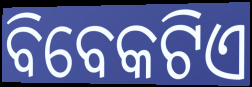
ବିବେକଟିଏ